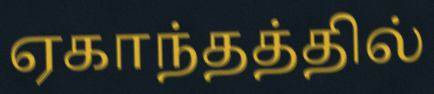
ஏகாந்தத்தில்